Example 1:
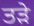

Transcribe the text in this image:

ਤੜੇ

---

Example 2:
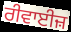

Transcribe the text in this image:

ਰੀਵਾਈਜ਼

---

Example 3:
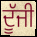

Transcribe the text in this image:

ਦੂੱਜੀ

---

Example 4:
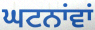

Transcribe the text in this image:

ਘਟਨਾਂਵਾਂ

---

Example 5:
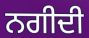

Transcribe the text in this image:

ਨਗੀਦੀ